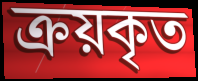
ক্রয়কৃত